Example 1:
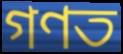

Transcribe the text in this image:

গণত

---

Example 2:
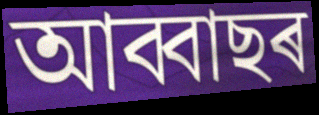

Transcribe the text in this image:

আব্বাছৰ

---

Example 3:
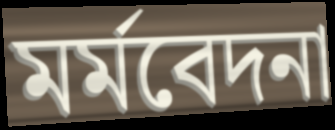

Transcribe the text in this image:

মৰ্মবেদনা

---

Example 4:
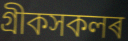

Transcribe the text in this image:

গ্ৰীকসকলৰ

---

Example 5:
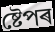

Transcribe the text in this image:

ষ্টেপৰ